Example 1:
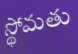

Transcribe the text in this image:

స్థోమతు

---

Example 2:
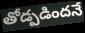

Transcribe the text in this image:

తోడ్పడిందనే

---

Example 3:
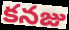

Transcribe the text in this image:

కనజు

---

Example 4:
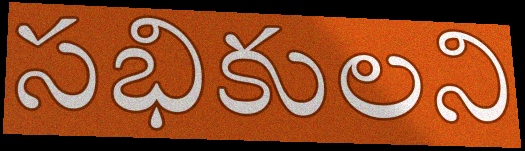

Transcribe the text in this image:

సభికులని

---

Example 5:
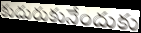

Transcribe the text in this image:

కుదురుకునేందుకు